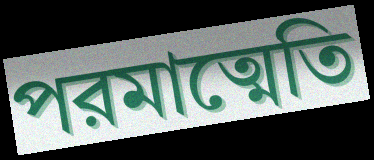
পরমাত্মেতি